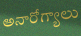
అనారోగ్యాలు